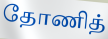
தோணித்